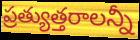
ప్రత్యుత్తరాలన్నీ